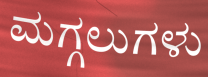
ಮಗ್ಗಲುಗಳು